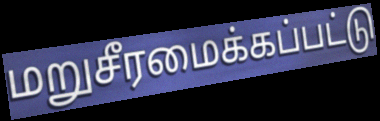
மறுசீரமைக்கப்பட்டு